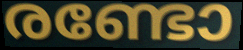
രണ്ടോ